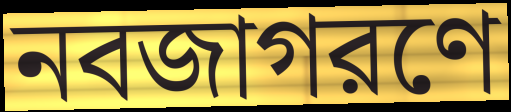
নবজাগরণে